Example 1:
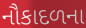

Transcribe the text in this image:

નૌકાદળના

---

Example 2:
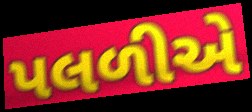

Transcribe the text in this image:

પલળીએ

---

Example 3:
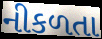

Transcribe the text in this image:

નીકળતા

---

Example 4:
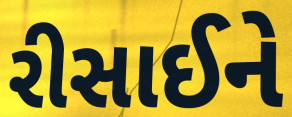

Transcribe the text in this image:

રીસાઈને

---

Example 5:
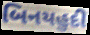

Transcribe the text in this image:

બિનયહુદી